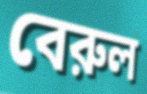
বেরুল